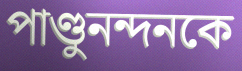
পাণ্ডুনন্দনকে